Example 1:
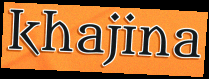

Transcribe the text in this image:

khajina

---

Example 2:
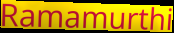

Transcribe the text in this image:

Ramamurthi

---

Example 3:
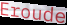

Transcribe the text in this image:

Eroude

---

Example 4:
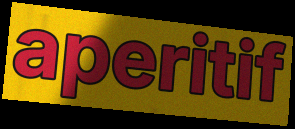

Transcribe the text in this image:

aperitif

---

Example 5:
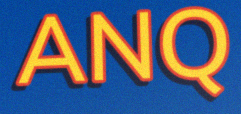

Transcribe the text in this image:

ANQ